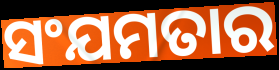
ସଂଯମତାର